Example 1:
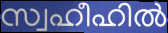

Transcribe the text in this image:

സ്വഹീഹിൽ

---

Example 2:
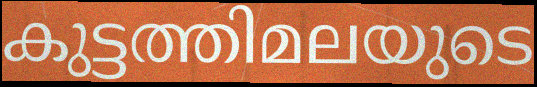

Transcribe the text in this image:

കുട്ടത്തിമലയുടെ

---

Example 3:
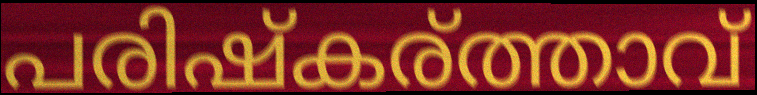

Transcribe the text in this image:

പരിഷ്കര്ത്താവ്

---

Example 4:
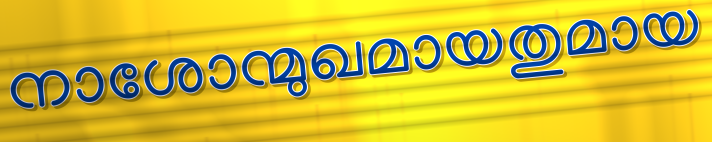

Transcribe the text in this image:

നാശോന്മുഖമായതുമായ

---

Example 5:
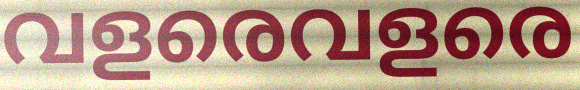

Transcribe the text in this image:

വളരെവളരെ